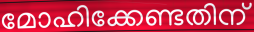
മോഹിക്കേണ്ടതിന്